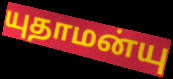
யுதாமன்யு